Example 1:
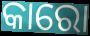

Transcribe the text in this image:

କାରୋ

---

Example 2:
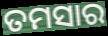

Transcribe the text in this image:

ତମସାର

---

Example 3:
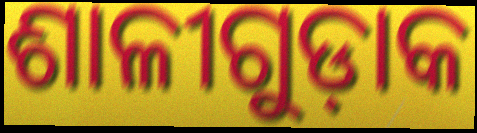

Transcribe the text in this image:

ଶାଳୀଗୁଡ଼ାକ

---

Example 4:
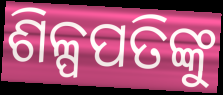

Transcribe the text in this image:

ଶିଳ୍ପପତିଙ୍କୁ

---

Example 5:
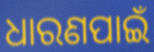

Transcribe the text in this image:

ଧାରଣପାଇଁ